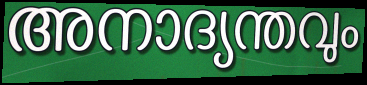
അനാദ്യന്തവും